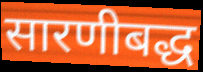
सारणीबद्ध